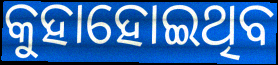
କୁହାହୋଇଥିବ